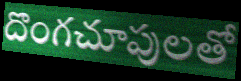
దొంగచూపులతో